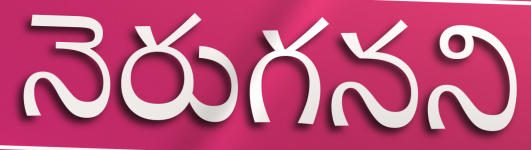
నెరుగనని